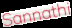
Sannathi